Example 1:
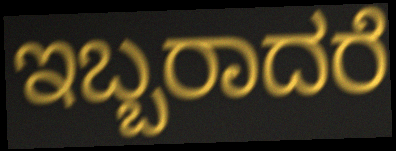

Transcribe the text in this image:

ಇಬ್ಬರಾದರೆ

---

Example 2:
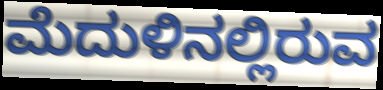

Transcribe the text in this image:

ಮೆದುಳಿನಲ್ಲಿರುವ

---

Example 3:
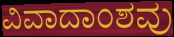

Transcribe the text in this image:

ವಿವಾದಾಂಶವು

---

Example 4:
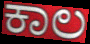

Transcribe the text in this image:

ಕಾಲ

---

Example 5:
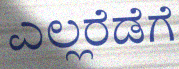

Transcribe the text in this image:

ಎಲ್ಲರೆಡೆಗೆ